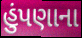
હુંપણાના